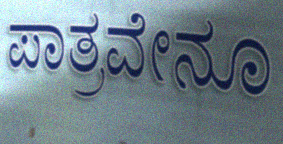
ಪಾತ್ರವೇನೂ